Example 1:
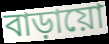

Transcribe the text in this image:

বাড়ায়ো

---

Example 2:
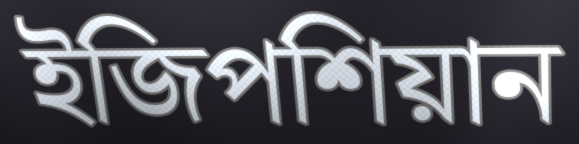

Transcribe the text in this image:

ইজিপশিয়ান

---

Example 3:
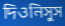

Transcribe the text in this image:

দিওনিসুস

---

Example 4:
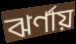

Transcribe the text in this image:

ঝর্ণায়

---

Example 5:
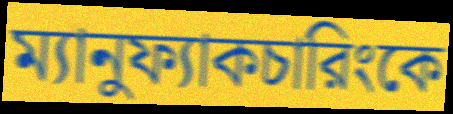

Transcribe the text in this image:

ম্যানুফ্যাকচারিংকে